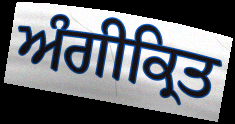
ਅੰਗੀਕ੍ਰਿਤ